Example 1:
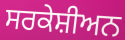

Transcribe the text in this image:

ਸਰਕੇਸ਼ੀਅਨ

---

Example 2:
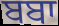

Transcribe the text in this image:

ਬਬਾ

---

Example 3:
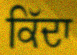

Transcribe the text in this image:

ਕਿੱਦਾ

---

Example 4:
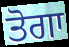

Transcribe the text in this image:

ਤੋਗਾ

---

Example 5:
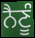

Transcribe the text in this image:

ਨੈਣੂੰ